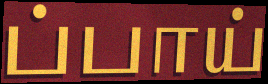
ப்பாய்